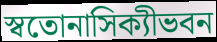
স্বতোনাসিক্যীভবন